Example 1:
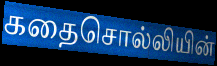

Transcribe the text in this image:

கதைசொல்லியின்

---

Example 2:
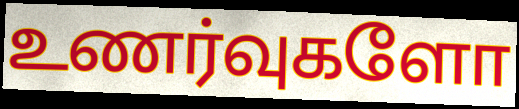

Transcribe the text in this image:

உணர்வுகளோ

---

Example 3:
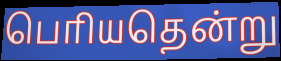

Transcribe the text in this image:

பெரியதென்று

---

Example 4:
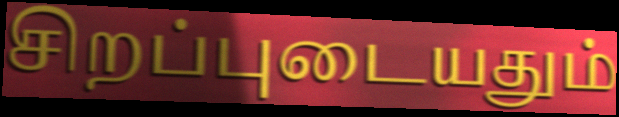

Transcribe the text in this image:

சிறப்புடையதும்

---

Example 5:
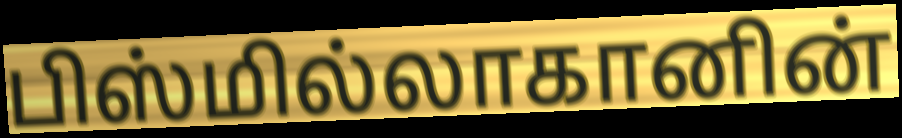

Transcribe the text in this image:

பிஸ்மில்லாகானின்